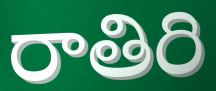
రాతిరి